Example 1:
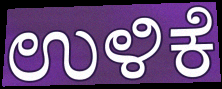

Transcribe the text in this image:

ಉಳಿಕೆ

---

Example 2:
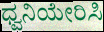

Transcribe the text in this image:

ಧ್ವನಿಯೇರಿಸಿ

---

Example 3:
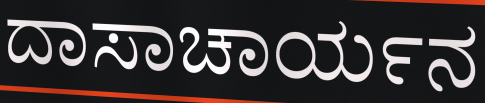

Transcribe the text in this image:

ದಾಸಾಚಾರ್ಯನ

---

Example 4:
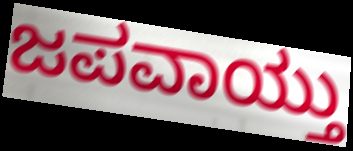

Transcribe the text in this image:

ಜಪವಾಯ್ತು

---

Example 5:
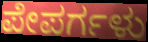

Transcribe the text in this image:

ಪೇಪರ್ಗಳು